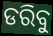
ଡରିବୁ